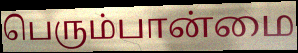
பெரும்பான்மை